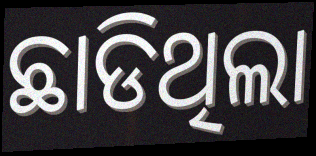
ଛାଡିଥିଲା